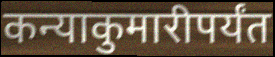
कन्याकुमारीपर्यंत